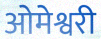
ओमेश्वरी